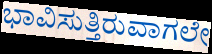
ಭಾವಿಸುತ್ತಿರುವಾಗಲೇ